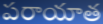
పరాయాత